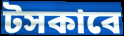
টসকাবে